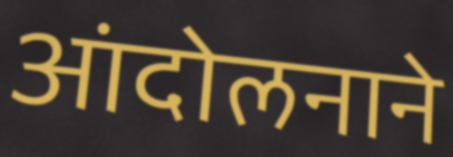
आंदोलनाने